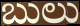
బులు